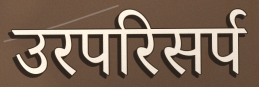
उरपरिसर्प